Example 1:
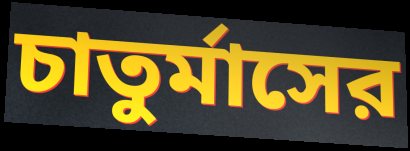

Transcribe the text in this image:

চাতুর্মাসের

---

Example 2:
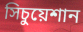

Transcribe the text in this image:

সিচুয়েশান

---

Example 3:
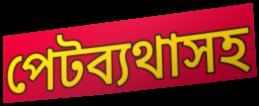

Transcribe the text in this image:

পেটব্যথাসহ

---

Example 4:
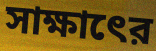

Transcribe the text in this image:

সাক্ষাৎের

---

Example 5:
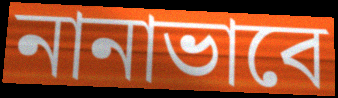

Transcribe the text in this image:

নানাভাবে